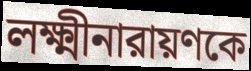
লক্ষ্মীনারায়ণকে